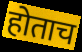
होताच